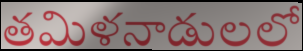
తమిళనాడులలో